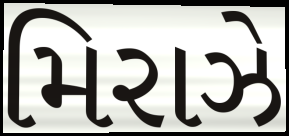
મિરાઝે